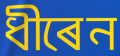
ধীৰেন